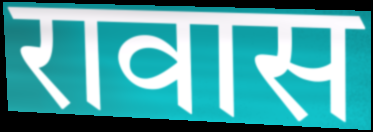
रावास